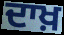
ਦਾਖ਼